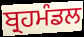
ਬ੍ਰਹਮੰਡਲ